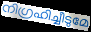
നിഗ്രഹിച്ചീടുമേ